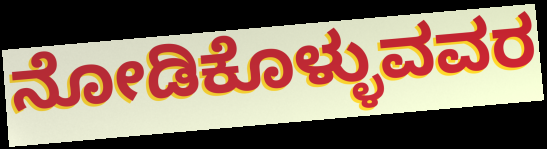
ನೋಡಿಕೊಳ್ಳುವವರ